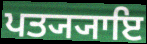
ਪਤ੍ਯ੍ਯਾਇ